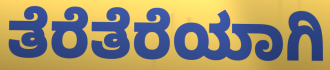
ತೆರೆತೆರೆಯಾಗಿ